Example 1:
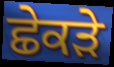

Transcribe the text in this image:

ਛੇਕੜੇ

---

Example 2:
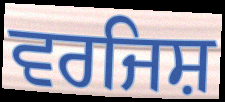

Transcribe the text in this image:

ਵਰਜਿਸ਼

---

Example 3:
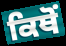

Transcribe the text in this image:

ਕਿਥੋਂ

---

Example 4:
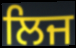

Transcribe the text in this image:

ਲਿਜ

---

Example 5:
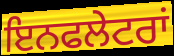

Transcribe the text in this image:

ਇਨਫਲੇਟਰਾਂ